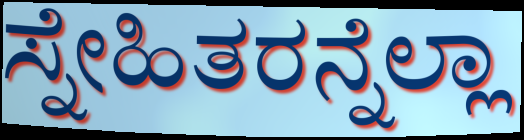
ಸ್ನೇಹಿತರನ್ನೆಲ್ಲಾ